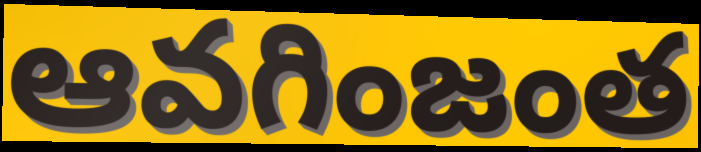
ఆవగింజంత